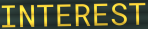
INTEREST